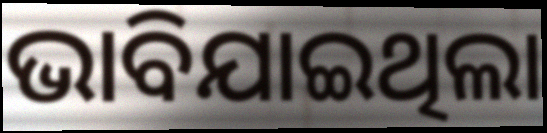
ଭାବିଯାଇଥିଲା